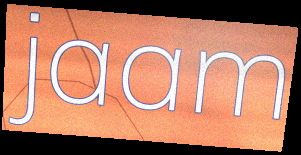
jaam